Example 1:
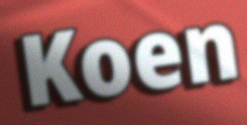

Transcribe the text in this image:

Koen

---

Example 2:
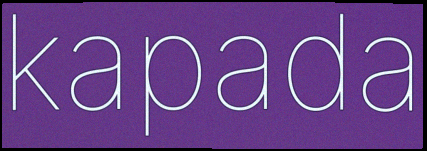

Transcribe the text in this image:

kapada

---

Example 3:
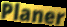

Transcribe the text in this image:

Planer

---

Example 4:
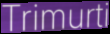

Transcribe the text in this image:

Trimurti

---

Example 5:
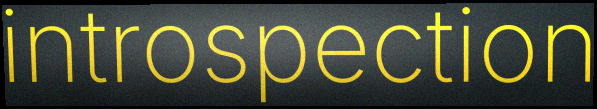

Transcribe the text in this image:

introspection